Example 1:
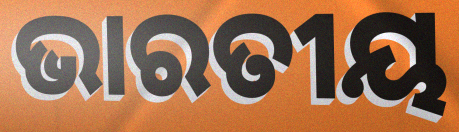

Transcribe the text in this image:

ଭାରତୀୟ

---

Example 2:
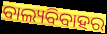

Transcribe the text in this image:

ବାଲ୍ୟବିବାହର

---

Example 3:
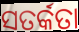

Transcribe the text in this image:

ସତର୍କତା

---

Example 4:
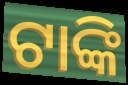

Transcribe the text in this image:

ଟାଙ୍କି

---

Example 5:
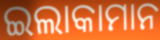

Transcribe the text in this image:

ଇଲାକାମାନ